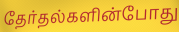
தேர்தல்களின்போது